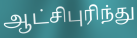
ஆட்சிபுரிந்து